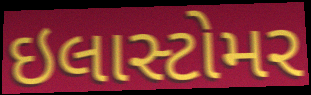
ઇલાસ્ટોમર